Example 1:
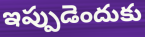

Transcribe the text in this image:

ఇప్పుడెందుకు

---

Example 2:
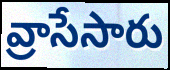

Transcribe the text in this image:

వ్రాసేసారు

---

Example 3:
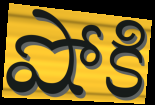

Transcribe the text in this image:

షోకి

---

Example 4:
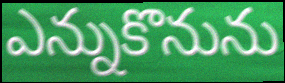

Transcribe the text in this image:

ఎన్నుకొనును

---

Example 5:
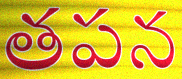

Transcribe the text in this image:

తపన